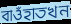
বাওঁহাতখন